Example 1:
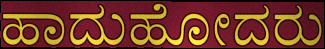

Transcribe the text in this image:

ಹಾದುಹೋದರು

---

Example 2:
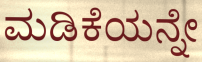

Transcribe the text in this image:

ಮಡಿಕೆಯನ್ನೇ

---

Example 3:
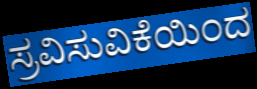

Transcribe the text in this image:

ಸ್ರವಿಸುವಿಕೆಯಿಂದ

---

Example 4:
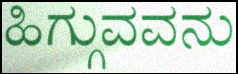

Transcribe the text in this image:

ಹಿಗ್ಗುವವನು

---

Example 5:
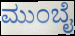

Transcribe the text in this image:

ಮುಂಬೈ